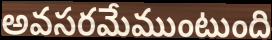
అవసరమేముంటుంది